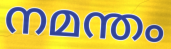
നമന്തം